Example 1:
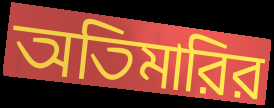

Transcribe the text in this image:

অতিমারির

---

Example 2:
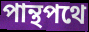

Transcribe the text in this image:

পান্থপথে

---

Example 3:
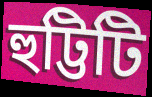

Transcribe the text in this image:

হুট্টিটি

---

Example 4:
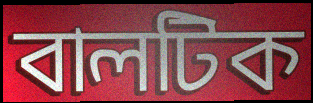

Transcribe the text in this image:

বালটিক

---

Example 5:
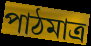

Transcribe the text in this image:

পাঠমাত্র